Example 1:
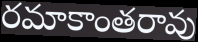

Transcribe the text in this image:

రమాకాంతరావు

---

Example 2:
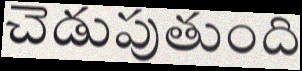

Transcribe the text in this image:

చెడుపుతుంది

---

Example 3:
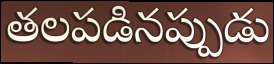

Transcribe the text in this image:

తలపడినప్పుడు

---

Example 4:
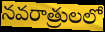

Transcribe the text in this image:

నవరాత్రులలో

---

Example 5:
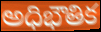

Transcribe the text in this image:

అధిభౌతిక